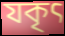
যকৃৎ